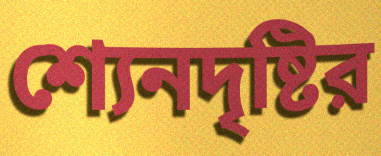
শ্যেনদৃষ্টির